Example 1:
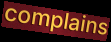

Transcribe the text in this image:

complains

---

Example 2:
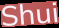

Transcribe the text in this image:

Shui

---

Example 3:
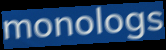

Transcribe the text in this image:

monologs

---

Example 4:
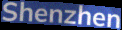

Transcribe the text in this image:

Shenzhen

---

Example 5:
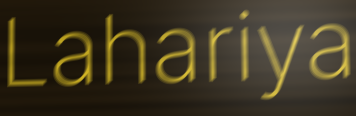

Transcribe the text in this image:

Lahariya